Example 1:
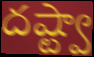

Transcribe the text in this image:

దష్ట్వా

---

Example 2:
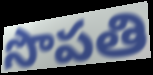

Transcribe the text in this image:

సొపతి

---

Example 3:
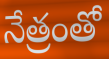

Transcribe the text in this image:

నేత్రంతో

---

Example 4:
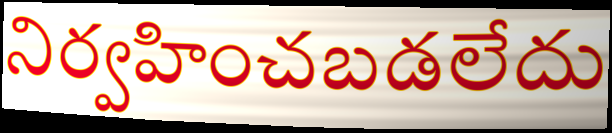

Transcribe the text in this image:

నిర్వహించబడలేదు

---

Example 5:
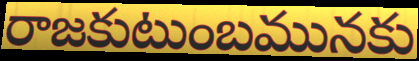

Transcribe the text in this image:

రాజకుటుంబమునకు